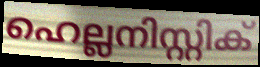
ഹെല്ലനിസ്റ്റിക്